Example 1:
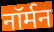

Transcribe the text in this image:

नॉर्मन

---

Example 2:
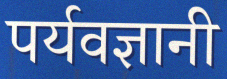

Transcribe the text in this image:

पर्यवज्ञानी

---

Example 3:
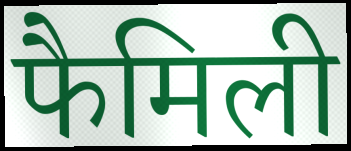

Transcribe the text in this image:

फैमिली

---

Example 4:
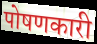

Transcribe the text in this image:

पोषणकारी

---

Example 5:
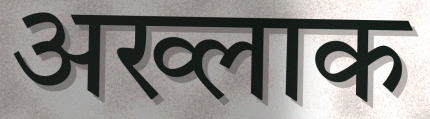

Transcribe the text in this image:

अख्लाक